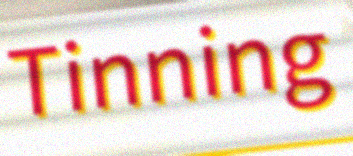
Tinning